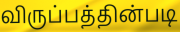
விருப்பத்தின்படி